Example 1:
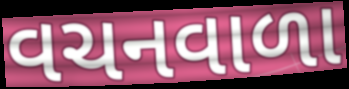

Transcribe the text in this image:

વચનવાળા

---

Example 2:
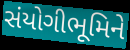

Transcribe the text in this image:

સંયોગીભૂમિને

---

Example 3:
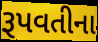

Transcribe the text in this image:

રૂપવતીના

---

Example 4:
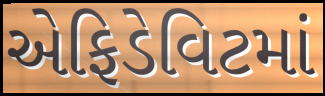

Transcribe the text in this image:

એફિડેવિટમાં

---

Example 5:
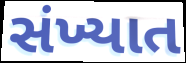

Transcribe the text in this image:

સંખ્યાત